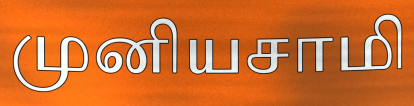
முனியசாமி